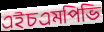
এইচএমপিভি